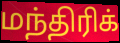
மந்திரிக்